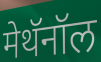
मेथॅनॉल